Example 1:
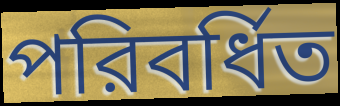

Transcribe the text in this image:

পরিবর্ধিত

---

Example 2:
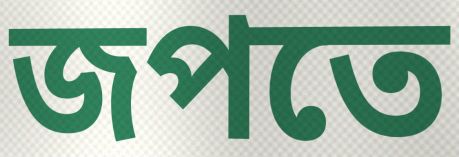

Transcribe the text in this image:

জপতে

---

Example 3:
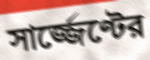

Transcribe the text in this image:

সার্জ্জেণ্টের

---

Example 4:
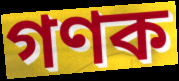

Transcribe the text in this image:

গণক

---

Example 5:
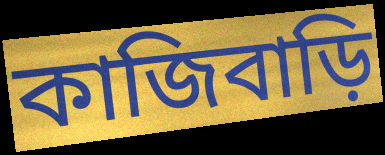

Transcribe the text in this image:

কাজিবাড়ি